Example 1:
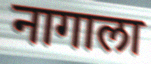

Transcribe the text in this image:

नागाला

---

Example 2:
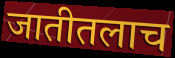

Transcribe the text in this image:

जातीतलाच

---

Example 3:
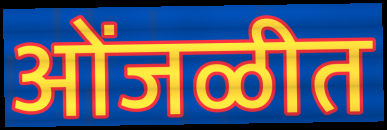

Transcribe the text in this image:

ओंजळीत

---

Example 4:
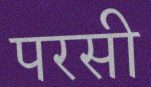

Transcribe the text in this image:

परसी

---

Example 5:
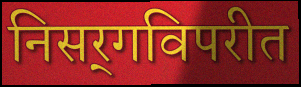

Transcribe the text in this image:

निसर्गविपरीत